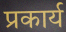
प्रकार्य